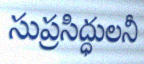
సుప్రసిద్ధులనీ